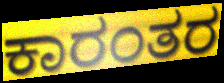
ಕಾರಂತರ